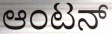
ಆಂಟನ್